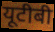
यूटीबी